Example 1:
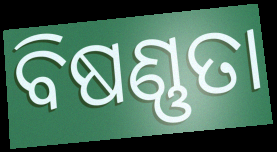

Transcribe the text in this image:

ବିଷଣ୍ଣତା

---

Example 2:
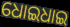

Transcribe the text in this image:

ଧୋଇଧାଇ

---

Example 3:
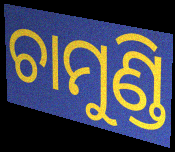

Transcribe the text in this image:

ଚାମୁଣ୍ଡି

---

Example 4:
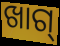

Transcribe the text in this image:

ଖାଗ୍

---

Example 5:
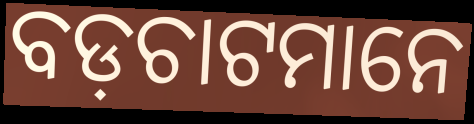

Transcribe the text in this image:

ବଡ଼ଚାଟମାନେ